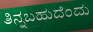
ತಿನ್ನಬಹುದೆಂದು